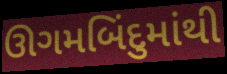
ઊગમબિંદુમાંથી